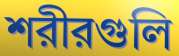
শরীরগুলি